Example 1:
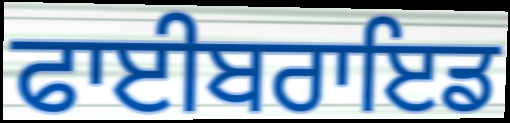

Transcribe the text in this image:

ਫਾਈਬਰਾਇਡ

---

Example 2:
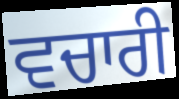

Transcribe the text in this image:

ਵਚਾਰੀ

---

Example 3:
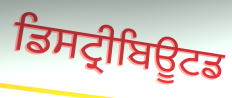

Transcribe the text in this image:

ਡਿਸਟ੍ਰੀਬਿਊਟਡ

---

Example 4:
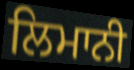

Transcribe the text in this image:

ਲਿਮਾਨੀ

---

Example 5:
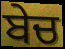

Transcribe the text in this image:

ਬੇਚ